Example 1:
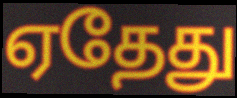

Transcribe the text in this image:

ஏதேது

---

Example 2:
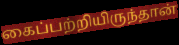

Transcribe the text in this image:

கைப்பற்றியிருந்தான்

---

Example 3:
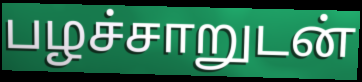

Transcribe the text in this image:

பழச்சாறுடன்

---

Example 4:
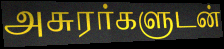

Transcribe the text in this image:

அசுரர்களுடன்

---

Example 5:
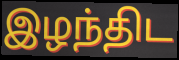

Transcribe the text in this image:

இழந்திட